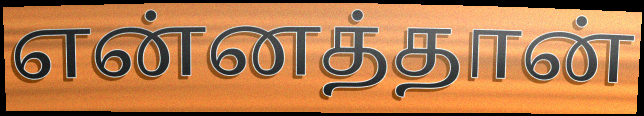
என்னத்தான்